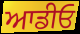
ਆਡੀਓ